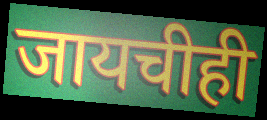
जायचीही